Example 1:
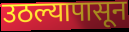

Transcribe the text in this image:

उठल्यापासून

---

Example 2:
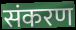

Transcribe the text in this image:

संकरण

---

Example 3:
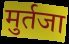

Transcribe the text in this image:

मुर्तजा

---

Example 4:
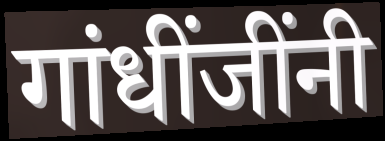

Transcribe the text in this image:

गांधींजींनी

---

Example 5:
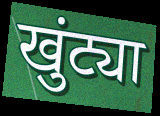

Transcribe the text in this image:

खुंट्या